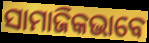
ସାମାଜିକଭାବେ